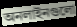
অনলাইনগুলো